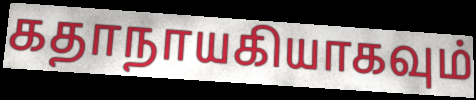
கதாநாயகியாகவும்